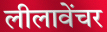
लीलावेंचर